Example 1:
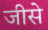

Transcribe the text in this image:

जीसे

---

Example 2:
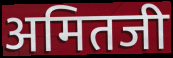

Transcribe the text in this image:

अमितजी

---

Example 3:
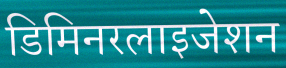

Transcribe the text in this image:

डिमिनरलाइजेशन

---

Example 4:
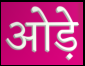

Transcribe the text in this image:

ओड़े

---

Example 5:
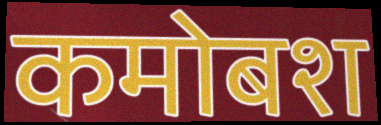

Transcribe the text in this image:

कमोबश